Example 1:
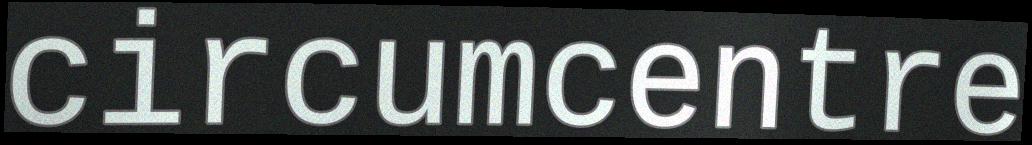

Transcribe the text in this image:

circumcentre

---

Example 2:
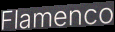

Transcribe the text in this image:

Flamenco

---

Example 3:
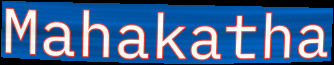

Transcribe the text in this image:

Mahakatha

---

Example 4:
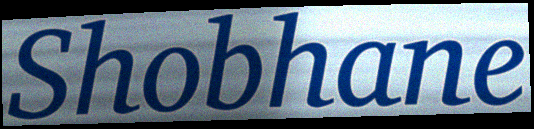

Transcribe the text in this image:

Shobhane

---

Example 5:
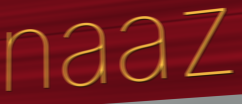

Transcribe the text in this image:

naaz